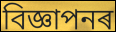
বিজ্ঞাপনৰ